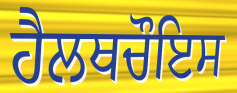
ਹੈਲਥਚੌਇਸ